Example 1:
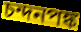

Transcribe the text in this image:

চন্দনপঙ্ক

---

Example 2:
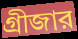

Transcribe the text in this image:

গ্রীজার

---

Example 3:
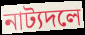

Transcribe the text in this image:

নাট্যদলে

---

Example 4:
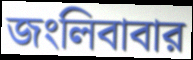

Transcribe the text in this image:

জংলিবাবার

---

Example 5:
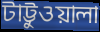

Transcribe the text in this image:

টাট্টুওয়ালা